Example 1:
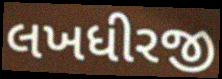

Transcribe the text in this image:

લખધીરજી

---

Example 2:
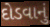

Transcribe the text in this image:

દોડવાનું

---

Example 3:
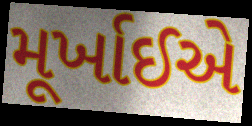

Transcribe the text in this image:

મૂર્ખાઈએ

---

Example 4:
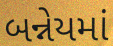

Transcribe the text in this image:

બન્નેયમાં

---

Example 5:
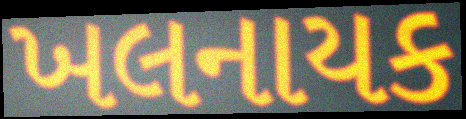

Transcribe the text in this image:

ખલનાયક